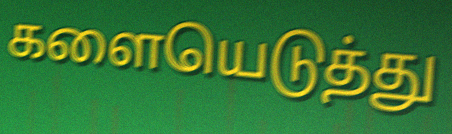
களையெடுத்து